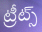
ట్రీట్స్